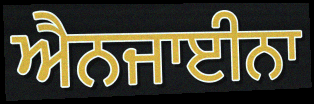
ਐਨਜਾਈਨਾ